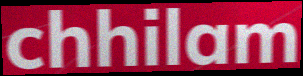
chhilam